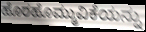
ಹೊರಹೊಮ್ಮುವಿಕೆಯನ್ನು